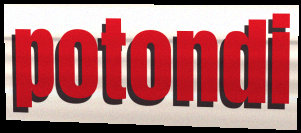
potondi